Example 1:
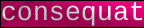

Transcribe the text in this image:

consequat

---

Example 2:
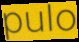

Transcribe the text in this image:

pulo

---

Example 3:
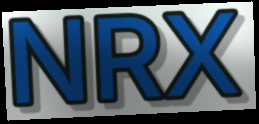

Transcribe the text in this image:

NRX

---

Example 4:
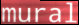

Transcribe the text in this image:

mural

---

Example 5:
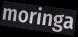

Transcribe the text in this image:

moringa